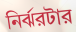
নির্ঝরটার